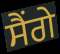
ਸੈਂਗੇ